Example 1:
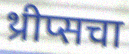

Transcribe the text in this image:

थ्रीप्सचा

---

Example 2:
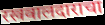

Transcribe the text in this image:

रखवालदाराचा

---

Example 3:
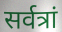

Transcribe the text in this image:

सर्वत्रां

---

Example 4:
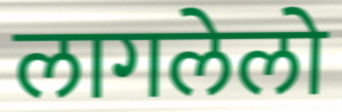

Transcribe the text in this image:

लागलेलो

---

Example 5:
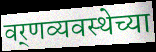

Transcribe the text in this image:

वर्णव्यवस्थेच्या